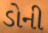
ડોની